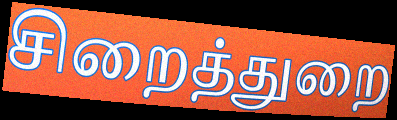
சிறைத்துறை